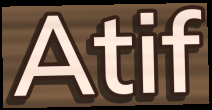
Atif